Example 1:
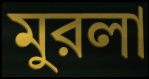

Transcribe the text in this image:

মুরলা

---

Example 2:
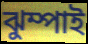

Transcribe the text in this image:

ঝুম্পাই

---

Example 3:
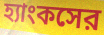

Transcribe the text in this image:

হ্যাংকসের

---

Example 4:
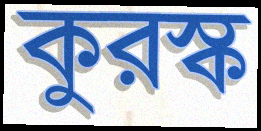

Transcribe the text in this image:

কুরস্ক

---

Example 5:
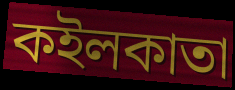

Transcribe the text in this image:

কইলকাতা